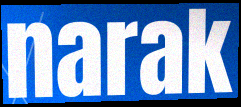
narak